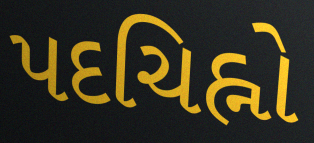
પદચિહ્નો